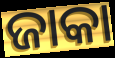
ଜାକା